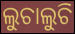
ଲୁଚାଲୁଚି